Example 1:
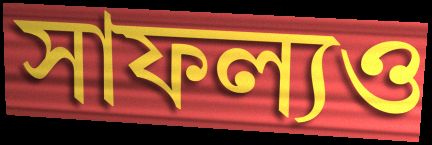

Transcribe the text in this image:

সাফল্যও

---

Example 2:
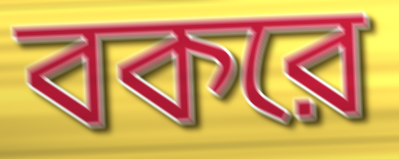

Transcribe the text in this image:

বকরে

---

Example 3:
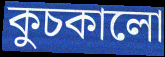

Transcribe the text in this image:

কুচকালো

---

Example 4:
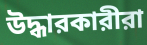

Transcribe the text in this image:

উদ্ধারকারীরা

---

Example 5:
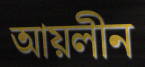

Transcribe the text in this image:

আয়লীন